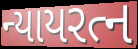
ન્યાયરત્ન